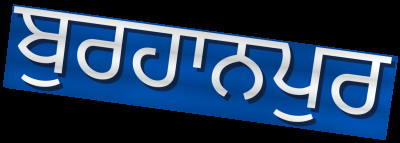
ਬੁਰਹਾਨਪੁਰ